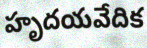
హృదయవేదిక